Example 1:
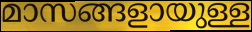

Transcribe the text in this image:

മാസങ്ങളായുള്ള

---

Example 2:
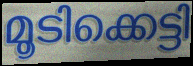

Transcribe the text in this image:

മൂടിക്കെട്ടി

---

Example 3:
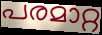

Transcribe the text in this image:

പരമാറ്റ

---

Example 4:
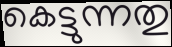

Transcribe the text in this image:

കെട്ടുന്നതു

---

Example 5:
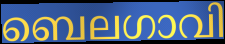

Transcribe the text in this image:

ബെലഗാവി